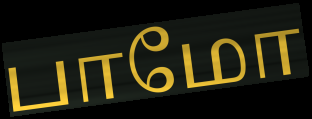
பாமோ